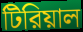
টিরিয়াল